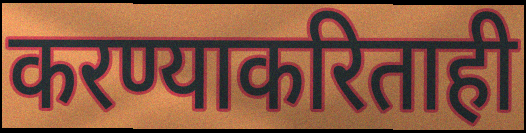
करण्याकरिताही